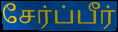
சேர்ப்பீர்